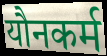
यौनकर्म